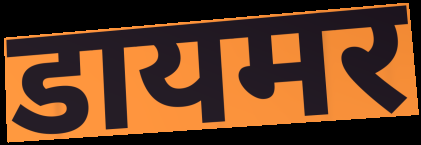
डायमर